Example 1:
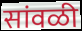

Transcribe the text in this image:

सांवळी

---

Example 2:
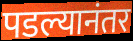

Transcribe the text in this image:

पडल्यानंतर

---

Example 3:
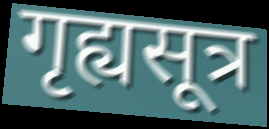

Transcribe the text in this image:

गृह्यसूत्र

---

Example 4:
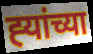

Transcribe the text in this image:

ह्‍यांच्या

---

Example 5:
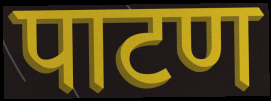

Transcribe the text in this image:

पाटण